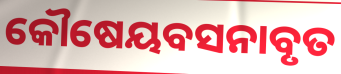
କୌଷେୟବସନାବୃତ